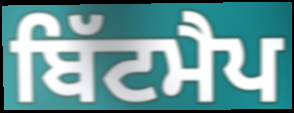
ਬਿੱਟਮੈਪ